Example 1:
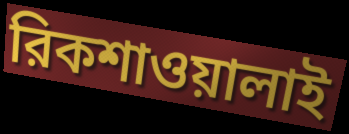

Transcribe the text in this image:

রিকশাওয়ালাই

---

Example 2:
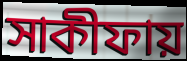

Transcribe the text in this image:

সাকীফায়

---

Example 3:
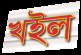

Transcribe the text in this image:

খইল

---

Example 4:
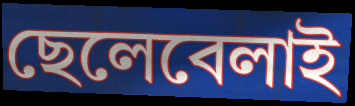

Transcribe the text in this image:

ছেলেবেলাই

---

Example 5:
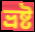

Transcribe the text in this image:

ভ্রষ্ট